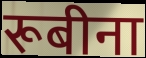
रूबीना